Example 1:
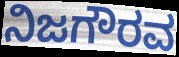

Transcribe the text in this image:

ನಿಜಗೌರವ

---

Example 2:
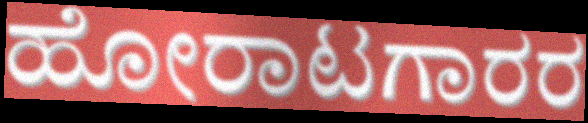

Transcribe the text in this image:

ಹೋರಾಟಗಾರರ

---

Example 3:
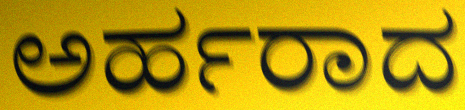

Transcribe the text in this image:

ಅರ್ಹರಾದ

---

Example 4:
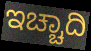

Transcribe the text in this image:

ಇಚ್ಚಾದಿ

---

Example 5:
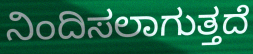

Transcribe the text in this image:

ನಿಂದಿಸಲಾಗುತ್ತದೆ